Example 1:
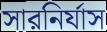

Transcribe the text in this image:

সারনির্যাস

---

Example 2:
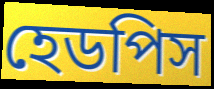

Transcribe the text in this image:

হেডপিস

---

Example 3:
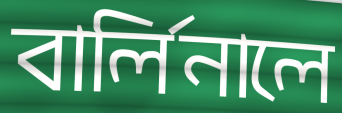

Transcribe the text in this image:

বার্লিনালে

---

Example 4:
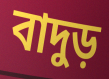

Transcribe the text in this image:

বাদুড়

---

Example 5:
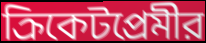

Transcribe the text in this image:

ক্রিকেটপ্রেমীর